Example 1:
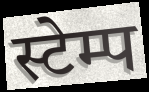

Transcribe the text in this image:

स्टेम्प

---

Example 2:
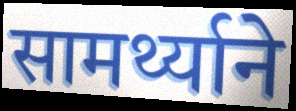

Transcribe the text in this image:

सामर्थ्याने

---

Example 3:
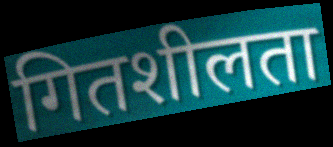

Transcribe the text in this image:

गितशीलता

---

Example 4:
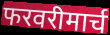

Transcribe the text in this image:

फरवरीमार्च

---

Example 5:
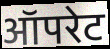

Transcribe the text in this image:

ऑपरेट